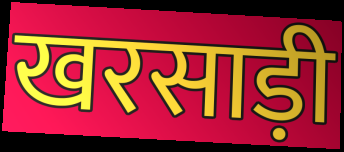
खरसाड़ी